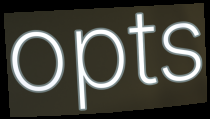
opts